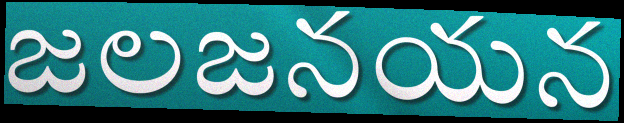
జలజనయన